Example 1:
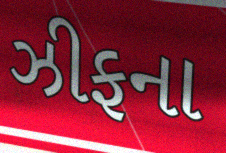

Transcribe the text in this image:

ઝીફના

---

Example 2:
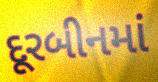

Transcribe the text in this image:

દૂરબીનમાં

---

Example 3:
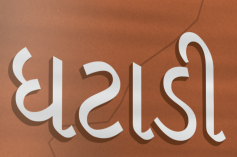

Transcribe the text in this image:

ધટાડી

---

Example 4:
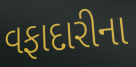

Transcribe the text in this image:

વફાદારીના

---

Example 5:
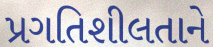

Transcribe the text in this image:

પ્રગતિશીલતાને